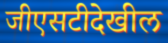
जीएसटीदेखील